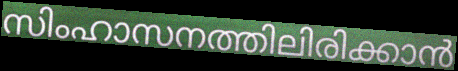
സിംഹാസനത്തിലിരിക്കാൻ